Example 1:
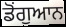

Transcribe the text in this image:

ਡੋਂਗੁਆਨ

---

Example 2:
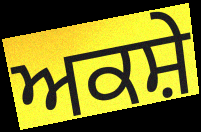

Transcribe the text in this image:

ਅਕਸ਼ੇ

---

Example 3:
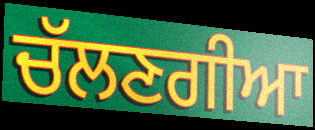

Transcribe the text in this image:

ਚੱਲਣਗੀਆ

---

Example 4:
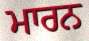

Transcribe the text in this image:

ਮਾਰਨ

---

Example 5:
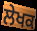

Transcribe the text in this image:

ਲੇਖਕ